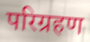
परिग्रहण